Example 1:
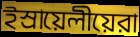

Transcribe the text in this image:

ইস্রায়েলীয়েরা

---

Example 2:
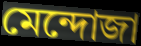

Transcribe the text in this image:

মেন্দোজা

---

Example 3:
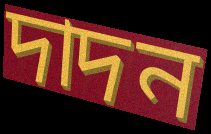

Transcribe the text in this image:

দাদন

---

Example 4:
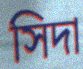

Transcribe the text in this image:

সিদা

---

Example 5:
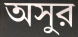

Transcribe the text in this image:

অসুর